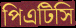
পিএটিসি